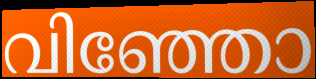
വിഞ്ഞോ